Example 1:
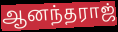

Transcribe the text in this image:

ஆனந்தராஜ்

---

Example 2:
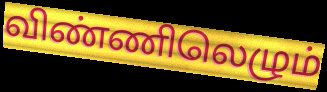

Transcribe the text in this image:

விண்ணிலெழும்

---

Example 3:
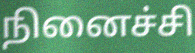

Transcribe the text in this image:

நினைச்சி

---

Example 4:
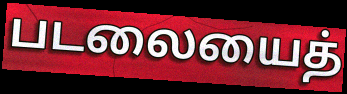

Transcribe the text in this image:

படலையைத்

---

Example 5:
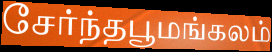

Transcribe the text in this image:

சேர்ந்தபூமங்கலம்